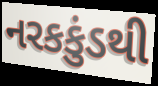
નરકકુંડથી